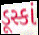
ડૂસ્કાં